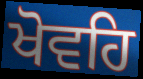
ਖੋਵਹਿ